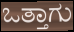
ಒತ್ತಾಗು